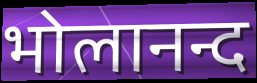
भोलानन्द